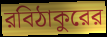
রবিঠাকুরের